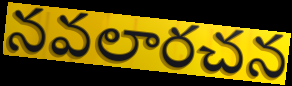
నవలారచన